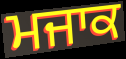
ਮਜਾਕ